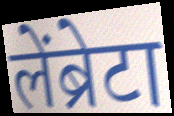
लेंब्रेटा